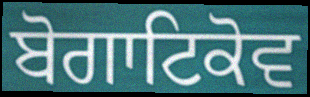
ਬੋਗਾਟਿਕੋਵ